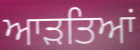
ਆੜਤਿਆਂ